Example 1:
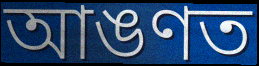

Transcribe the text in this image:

আঙণত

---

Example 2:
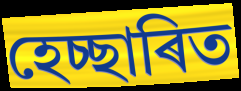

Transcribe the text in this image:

হেচ্ছাৰিত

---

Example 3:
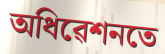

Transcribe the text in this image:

অধিৱেশনতে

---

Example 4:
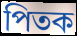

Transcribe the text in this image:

পিতক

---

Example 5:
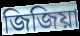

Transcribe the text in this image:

জিজিয়া